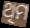
ଥିମ